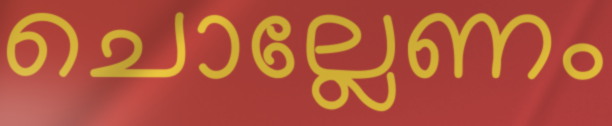
ചൊല്ലേണം